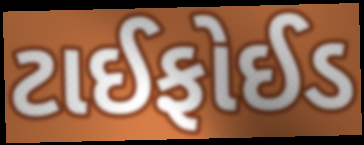
ટાઈફોઈડ